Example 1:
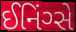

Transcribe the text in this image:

ઈનિંગ્સે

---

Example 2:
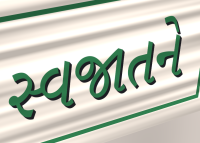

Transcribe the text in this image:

સ્વજાતને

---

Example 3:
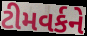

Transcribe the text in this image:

ટીમવર્કને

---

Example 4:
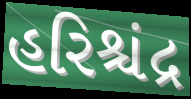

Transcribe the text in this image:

હરિશ્ચંદ્ર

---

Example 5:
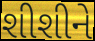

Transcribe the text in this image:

શીશીને